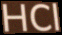
HCl